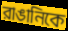
রাঙানিকে